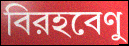
বিরহবেণু